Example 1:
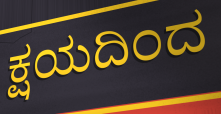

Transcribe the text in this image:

ಕ್ಷಯದಿಂದ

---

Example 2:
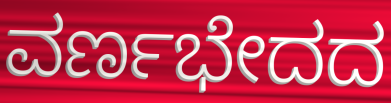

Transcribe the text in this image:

ವರ್ಣಭೇದದ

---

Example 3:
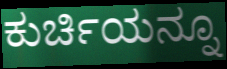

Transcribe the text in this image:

ಕುರ್ಚಿಯನ್ನೂ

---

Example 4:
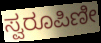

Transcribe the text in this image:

ಸ್ವರೂಪಿಣೀ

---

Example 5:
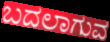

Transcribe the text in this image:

ಬದಲಾಗುವ